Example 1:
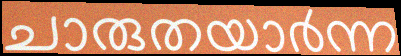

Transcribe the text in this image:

ചാരുതയാർന്ന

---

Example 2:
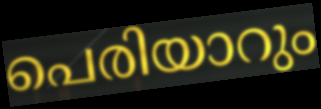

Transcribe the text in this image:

പെരിയാറും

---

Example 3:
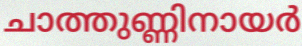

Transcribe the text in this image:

ചാത്തുണ്ണിനായർ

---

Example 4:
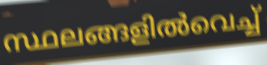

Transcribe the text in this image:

സ്ഥലങ്ങളിൽവെച്ച്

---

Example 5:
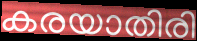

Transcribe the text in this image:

കരയാതിരി